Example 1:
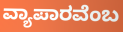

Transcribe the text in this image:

ವ್ಯಾಪಾರವೆಂಬ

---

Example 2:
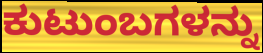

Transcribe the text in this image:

ಕುಟುಂಬಗಳನ್ನು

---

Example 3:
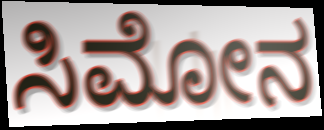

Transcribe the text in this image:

ಸಿಮೋನ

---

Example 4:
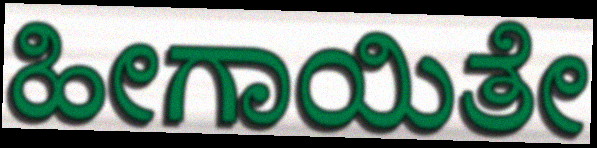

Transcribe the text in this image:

ಹೀಗಾಯಿತೇ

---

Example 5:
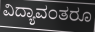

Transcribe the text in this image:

ವಿದ್ಯಾವಂತರೂ